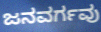
ಜನವರ್ಗವು